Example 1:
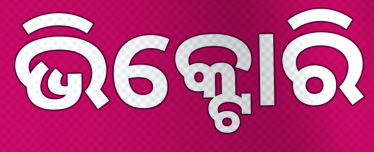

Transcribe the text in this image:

ଭିକ୍ଟୋରି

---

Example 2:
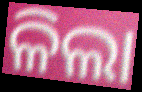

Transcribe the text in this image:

ଳିଲା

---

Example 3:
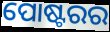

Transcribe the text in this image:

ପୋଷ୍ଟରର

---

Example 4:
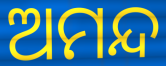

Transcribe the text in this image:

ଅମନ୍ଦ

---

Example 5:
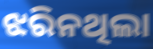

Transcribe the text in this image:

ଝରିନଥିଲା